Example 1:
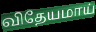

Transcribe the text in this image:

விதேயமாய்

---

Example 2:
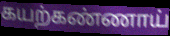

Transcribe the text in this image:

கயற்கண்ணாய்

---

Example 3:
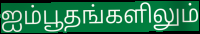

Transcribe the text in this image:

ஐம்பூதங்களிலும்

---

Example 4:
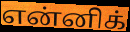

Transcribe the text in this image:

என்னிக்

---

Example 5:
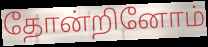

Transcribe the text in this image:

தோன்றினோம்